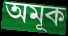
অমূক